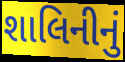
શાલિનીનું